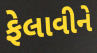
ફેલાવીને